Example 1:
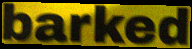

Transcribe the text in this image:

barked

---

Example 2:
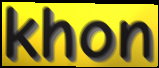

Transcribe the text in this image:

khon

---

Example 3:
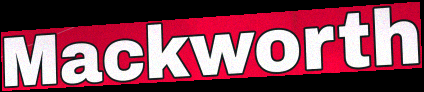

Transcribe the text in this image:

Mackworth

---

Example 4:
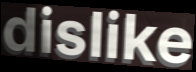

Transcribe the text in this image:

dislike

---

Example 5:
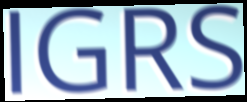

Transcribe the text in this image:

IGRS